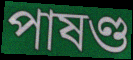
পাষণ্ড